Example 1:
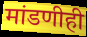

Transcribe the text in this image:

मांडणीही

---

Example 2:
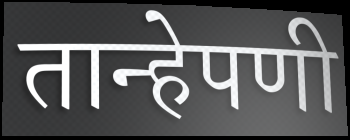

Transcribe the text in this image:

तान्हेपणी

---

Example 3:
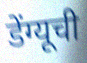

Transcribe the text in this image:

डेंग्यूची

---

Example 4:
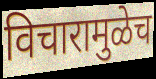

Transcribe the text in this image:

विचारामुळेच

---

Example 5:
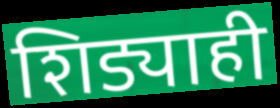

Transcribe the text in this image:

शिड्याही